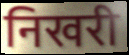
निखरी